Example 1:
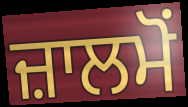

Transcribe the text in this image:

ਜ਼ਾਲਮੋਂ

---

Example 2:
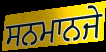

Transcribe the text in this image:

ਸਨਮਾਨਜੇ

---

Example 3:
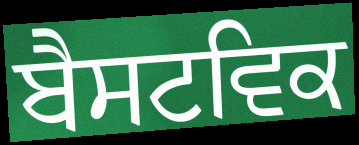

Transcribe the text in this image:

ਬੈਸਟਵਿਕ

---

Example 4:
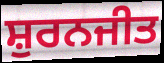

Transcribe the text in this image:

ਸ਼ੁਰਨਜੀਤ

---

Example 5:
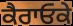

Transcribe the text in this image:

ਕੈਰਾਓਕੇ